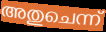
അതുചെന്ന്